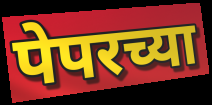
पेपरच्या